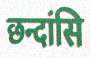
छन्दांसि